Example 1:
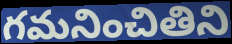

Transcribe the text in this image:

గమనించితిని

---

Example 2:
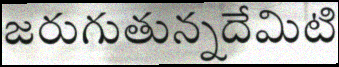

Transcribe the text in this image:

జరుగుతున్నదేమిటి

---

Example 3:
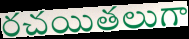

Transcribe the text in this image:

రచయితలుగా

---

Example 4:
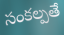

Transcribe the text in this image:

సంకల్పతే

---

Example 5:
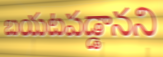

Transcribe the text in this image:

బయటపడ్డానని